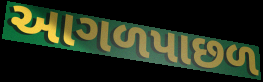
આગળપાછળ